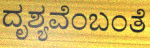
ದೃಶ್ಯವೆಂಬಂತೆ